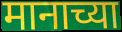
मानाच्या